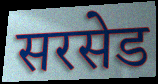
सरसेड